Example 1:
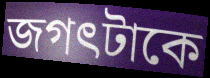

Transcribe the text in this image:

জগৎটাকে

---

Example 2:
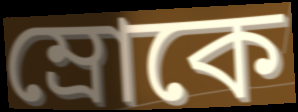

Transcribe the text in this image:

ম্রোকে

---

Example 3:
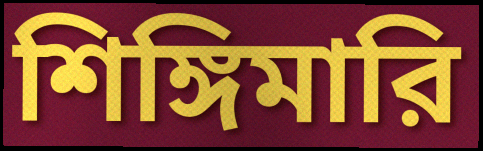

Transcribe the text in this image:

শিঙ্গিমারি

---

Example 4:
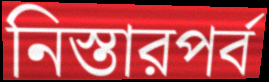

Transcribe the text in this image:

নিস্তারপর্ব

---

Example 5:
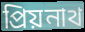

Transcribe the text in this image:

প্রিয়নাথ